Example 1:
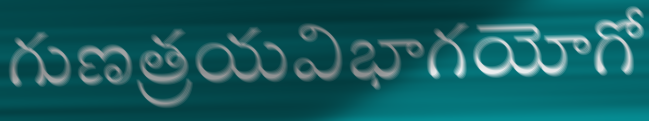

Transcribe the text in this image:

గుణత్రయవిభాగయోగో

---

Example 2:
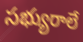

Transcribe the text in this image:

సభ్యురాలే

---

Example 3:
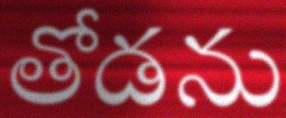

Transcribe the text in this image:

తోడను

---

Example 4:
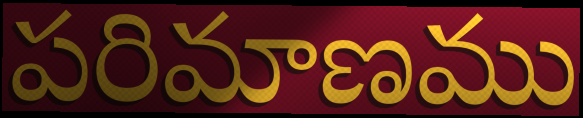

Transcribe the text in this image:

పరిమాణము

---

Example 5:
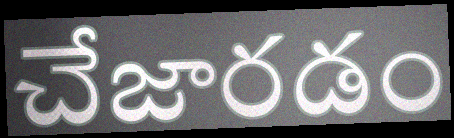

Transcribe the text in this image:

చేజారడం